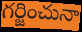
గర్జించునా